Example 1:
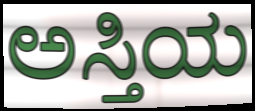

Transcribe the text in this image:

ಅಸ್ತಿಯ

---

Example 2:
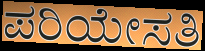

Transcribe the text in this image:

ಪರಿಯೇಸತಿ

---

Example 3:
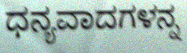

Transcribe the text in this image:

ಧನ್ಯವಾದಗಳನ್ನ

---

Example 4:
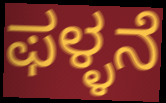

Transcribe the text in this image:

ಫಳ್ಳನೆ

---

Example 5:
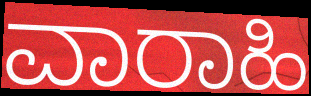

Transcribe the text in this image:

ವಾರಾಹಿ